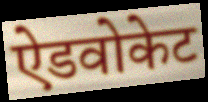
ऐडवोकेट